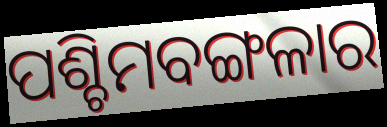
ପଶ୍ଚିମବଙ୍ଗଳାର